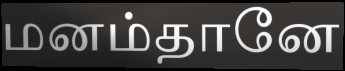
மனம்தானே